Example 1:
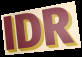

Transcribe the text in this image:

IDR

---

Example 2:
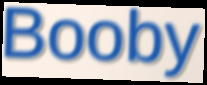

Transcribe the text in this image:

Booby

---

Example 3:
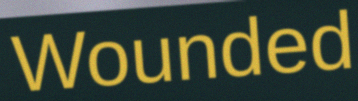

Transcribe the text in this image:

Wounded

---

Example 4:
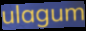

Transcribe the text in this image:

ulagum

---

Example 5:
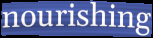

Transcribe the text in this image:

nourishing